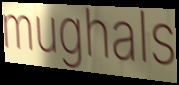
mughals